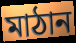
মাঠান